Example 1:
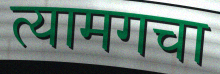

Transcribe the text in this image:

त्यामगचा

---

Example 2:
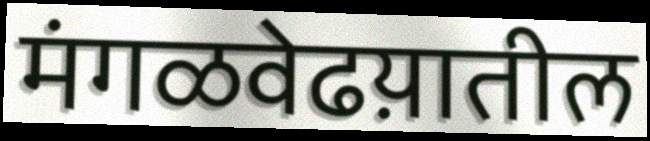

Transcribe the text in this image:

मंगळवेढय़ातील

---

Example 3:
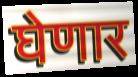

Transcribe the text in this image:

घेणार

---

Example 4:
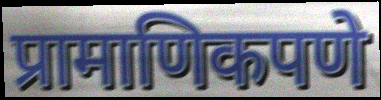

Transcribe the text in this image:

प्रामाणिकपणे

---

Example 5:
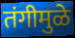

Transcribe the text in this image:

तंगीमुळे